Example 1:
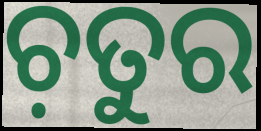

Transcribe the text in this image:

ଚ଼ତୁର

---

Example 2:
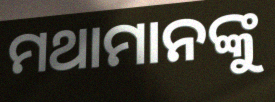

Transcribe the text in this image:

ମଥାମାନଙ୍କୁ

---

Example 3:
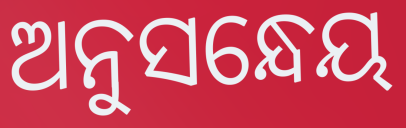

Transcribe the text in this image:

ଅନୁସନ୍ଧେୟ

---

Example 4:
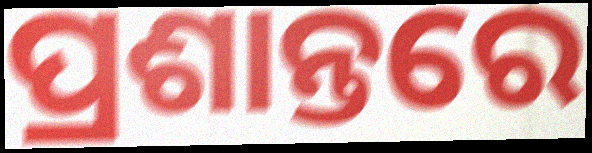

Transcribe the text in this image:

ପ୍ରଶାନ୍ତରେ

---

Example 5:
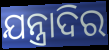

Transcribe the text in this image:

ଯନ୍ତ୍ରାଦିର